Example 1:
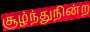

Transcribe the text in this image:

சூழ்ந்துநின்ற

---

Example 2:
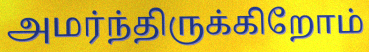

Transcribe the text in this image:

அமர்ந்திருக்கிறோம்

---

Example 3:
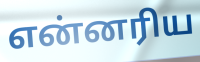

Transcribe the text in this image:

என்னரிய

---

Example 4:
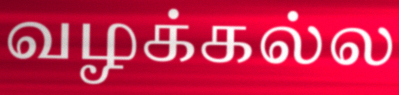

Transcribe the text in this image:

வழக்கல்ல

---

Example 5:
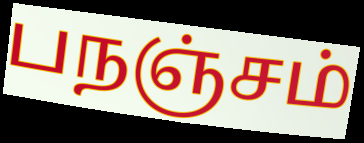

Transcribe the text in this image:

பநஞ்சம்